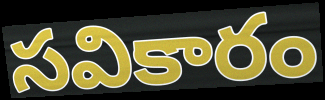
సవికారం